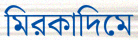
মিরকাদিমে